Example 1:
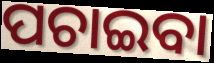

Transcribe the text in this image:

ପଚାଇବା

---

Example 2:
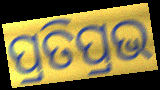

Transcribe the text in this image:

ପ୍ରତିପ୍ରଭ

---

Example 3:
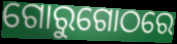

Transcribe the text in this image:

ଗୋରୁଗୋଠରେ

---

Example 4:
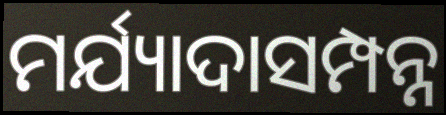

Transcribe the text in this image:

ମର୍ଯ୍ୟାଦାସମ୍ପନ୍ନ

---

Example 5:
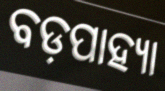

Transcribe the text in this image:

ବଡ଼ପାହ୍ୟା